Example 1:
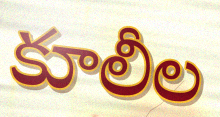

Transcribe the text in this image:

కూలీల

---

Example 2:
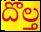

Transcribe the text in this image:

దొల్త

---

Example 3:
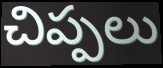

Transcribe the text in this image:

చిప్పలు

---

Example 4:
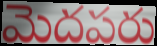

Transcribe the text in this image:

మెదపరు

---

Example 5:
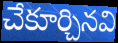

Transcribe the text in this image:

చేకూర్చినవి